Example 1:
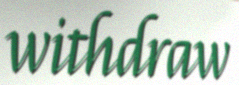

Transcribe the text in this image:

withdraw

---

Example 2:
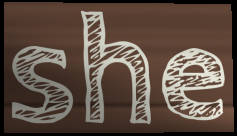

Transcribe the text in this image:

she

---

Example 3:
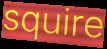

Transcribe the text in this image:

squire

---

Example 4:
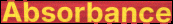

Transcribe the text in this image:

Absorbance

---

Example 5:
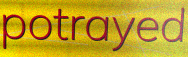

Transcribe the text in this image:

potrayed